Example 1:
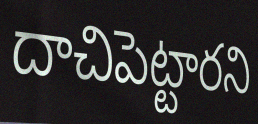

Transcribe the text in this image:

దాచిపెట్టారని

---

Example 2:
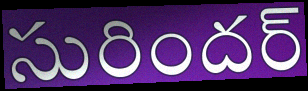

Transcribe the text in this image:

సురిందర్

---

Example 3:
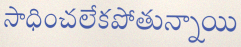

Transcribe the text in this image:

సాధించలేకపోతున్నాయి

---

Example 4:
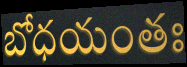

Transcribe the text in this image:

బోధయంతః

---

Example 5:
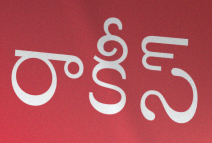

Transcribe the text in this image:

రాకీస్